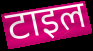
टाइल